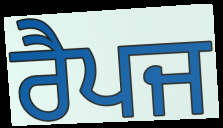
ਰੈਪਜ